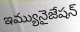
ఇమ్యునైజేషన్